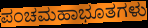
ಪಂಚಮಹಾಭೂತಗಳು